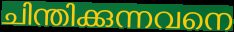
ചിന്തിക്കുന്നവനെ